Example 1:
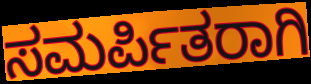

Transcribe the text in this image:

ಸಮರ್ಪಿತರಾಗಿ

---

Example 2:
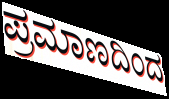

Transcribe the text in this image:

ಪ್ರಮಾಣದಿಂದ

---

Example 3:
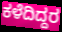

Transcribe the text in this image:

ಕಳೆದಿದ್ದರ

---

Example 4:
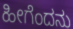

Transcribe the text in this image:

ಹೀಗೆಂದನು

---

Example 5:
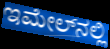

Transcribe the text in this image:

ಇಮೇಲ್‌ನಲ್ಲಿ